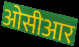
ओसीआर